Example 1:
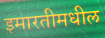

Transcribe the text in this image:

इमारतीमधील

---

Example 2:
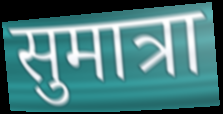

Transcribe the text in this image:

सुमात्रा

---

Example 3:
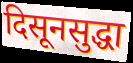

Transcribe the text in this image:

दिसूनसुद्धा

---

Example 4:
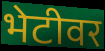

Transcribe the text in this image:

भेटीवर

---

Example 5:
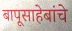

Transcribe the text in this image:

बापूसाहेबांचे